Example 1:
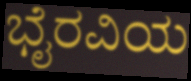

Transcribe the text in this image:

ಭೈರವಿಯ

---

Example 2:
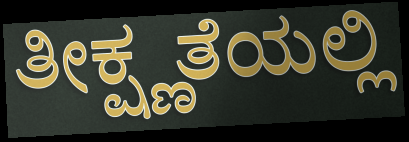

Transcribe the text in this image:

ತೀಕ್ಷ್ಣತೆಯಲ್ಲಿ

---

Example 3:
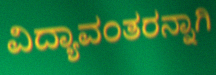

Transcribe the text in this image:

ವಿದ್ಯಾವಂತರನ್ನಾಗಿ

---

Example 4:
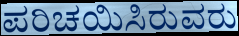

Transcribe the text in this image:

ಪರಿಚಯಿಸಿರುವರು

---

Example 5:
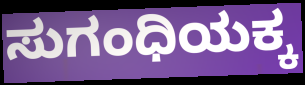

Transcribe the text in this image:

ಸುಗಂಧಿಯಕ್ಕ